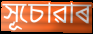
সূচোৱাৰ